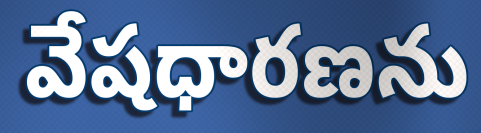
వేషధారణను